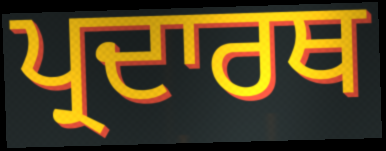
ਪ੍ਰਦਾਰਥ